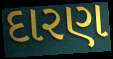
દારણ